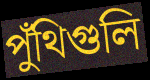
পুঁথিগুলি